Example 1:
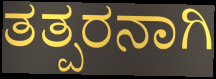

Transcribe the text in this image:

ತತ್ಪರನಾಗಿ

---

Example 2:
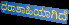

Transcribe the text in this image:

ಧರಾಶಾಹಿಯಾಗಿದೆ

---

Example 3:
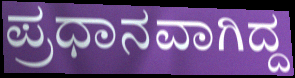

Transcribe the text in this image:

ಪ್ರಧಾನವಾಗಿದ್ದ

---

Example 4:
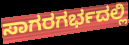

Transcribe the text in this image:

ಸಾಗರಗರ್ಭದಲ್ಲಿ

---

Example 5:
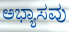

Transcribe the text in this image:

ಅಭ್ಯಾಸವು